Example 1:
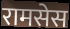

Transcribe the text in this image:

रामसेस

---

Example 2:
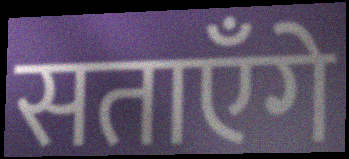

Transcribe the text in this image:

सताएँगे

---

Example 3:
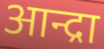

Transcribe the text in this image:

आन्द्रा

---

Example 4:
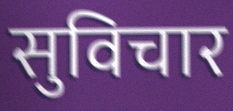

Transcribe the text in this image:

सुविचार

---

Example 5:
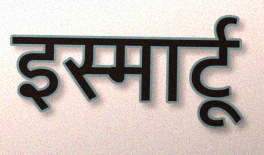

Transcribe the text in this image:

इस्मार्टू